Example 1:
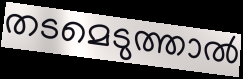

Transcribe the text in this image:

തടമെടുത്താൽ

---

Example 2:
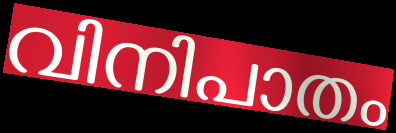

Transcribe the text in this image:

വിനിപാതം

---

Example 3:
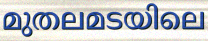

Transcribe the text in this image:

മുതലമടയിലെ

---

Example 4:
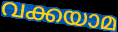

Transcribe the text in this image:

വക്കയാമ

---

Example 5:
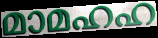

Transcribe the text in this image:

മാമഹഹ